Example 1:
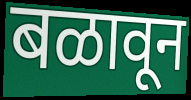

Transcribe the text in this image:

बळावून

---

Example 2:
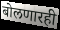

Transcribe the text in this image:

बोलणारही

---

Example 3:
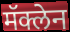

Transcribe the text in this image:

मॅक्लेन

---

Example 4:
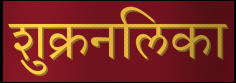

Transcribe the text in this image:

शुक्रनलिका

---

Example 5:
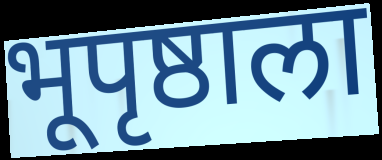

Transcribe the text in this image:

भूपृष्ठाला